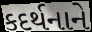
કદર્થનાને